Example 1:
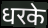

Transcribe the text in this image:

धरके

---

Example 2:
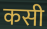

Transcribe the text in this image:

कसी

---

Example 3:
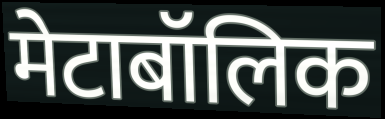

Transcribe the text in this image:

मेटाबॉलिक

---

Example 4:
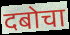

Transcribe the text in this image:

दबोचा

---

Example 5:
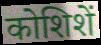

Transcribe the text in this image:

कोशिशें